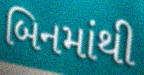
બિનમાંથી